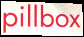
pillbox